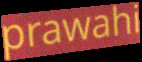
prawahi